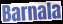
Barnala